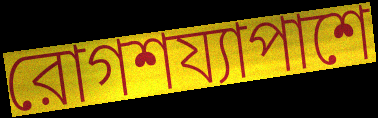
রোগশয্যাপাশে